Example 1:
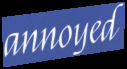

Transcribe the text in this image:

annoyed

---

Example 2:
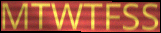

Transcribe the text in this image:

MTWTFSS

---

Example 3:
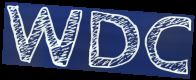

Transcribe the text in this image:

WDC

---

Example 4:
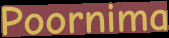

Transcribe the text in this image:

Poornima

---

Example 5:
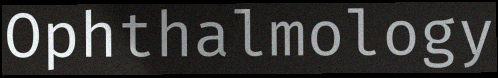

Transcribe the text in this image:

Ophthalmology